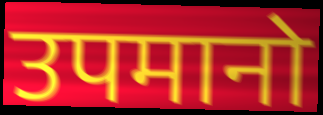
उपमानो